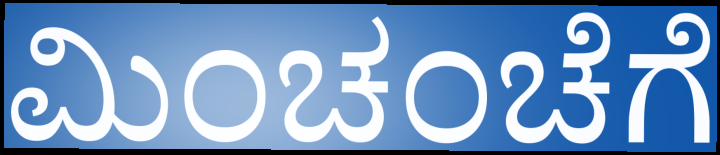
ಮಿಂಚಂಚೆಗೆ